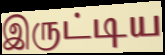
இருட்டிய